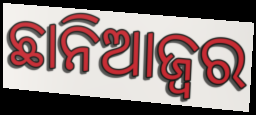
ଛାନିଆଜ୍ୱର